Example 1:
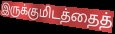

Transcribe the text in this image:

இருக்குமிடத்தைத்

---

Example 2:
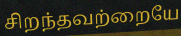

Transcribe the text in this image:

சிறந்தவற்றையே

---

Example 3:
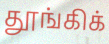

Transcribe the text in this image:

தூங்கிக்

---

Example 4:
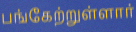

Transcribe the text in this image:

பங்கேற்றுள்ளார்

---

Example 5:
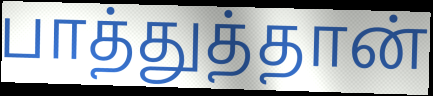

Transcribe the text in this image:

பாத்துத்தான்